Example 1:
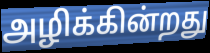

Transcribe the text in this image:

அழிக்கின்றது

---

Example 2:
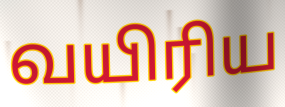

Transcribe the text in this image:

வயிரிய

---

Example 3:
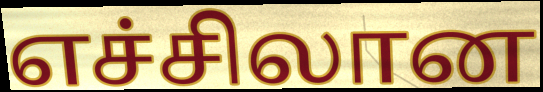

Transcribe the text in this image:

எச்சிலான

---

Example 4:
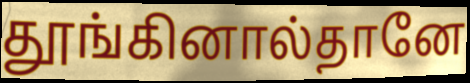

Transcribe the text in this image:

தூங்கினால்தானே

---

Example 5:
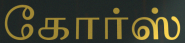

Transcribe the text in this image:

கோர்ஸ்